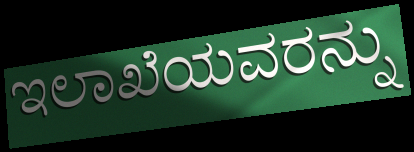
ಇಲಾಖೆಯವರನ್ನು